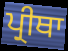
ਪ੍ਰੀਥਾ